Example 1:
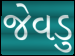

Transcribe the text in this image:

જેવડુ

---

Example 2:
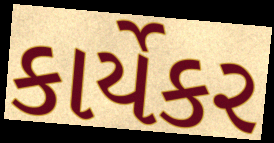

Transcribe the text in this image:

કાર્યેકર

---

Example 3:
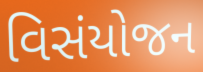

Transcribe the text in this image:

વિસંયોજન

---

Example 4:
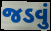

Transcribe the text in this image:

જડવું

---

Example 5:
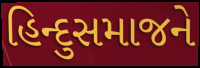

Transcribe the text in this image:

હિન્દુસમાજને